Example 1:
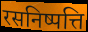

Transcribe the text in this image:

रसनिष्पत्ति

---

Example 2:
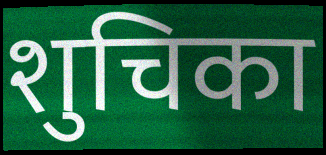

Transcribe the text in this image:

शुचिका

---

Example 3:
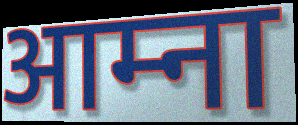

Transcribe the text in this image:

आम्ना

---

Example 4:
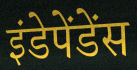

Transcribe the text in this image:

इंडेपेंडेंस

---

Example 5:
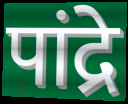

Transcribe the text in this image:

पांद्रे